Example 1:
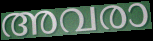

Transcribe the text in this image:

അവരാ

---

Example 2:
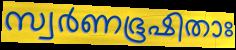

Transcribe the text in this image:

സ്വർണഭൂഷിതാഃ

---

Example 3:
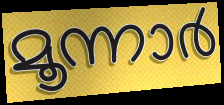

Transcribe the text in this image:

മൂന്നാർ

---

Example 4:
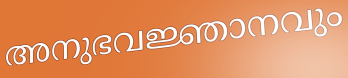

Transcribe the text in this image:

അനുഭവജ്ഞാനവും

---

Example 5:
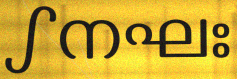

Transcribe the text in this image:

ഽനഘഃ